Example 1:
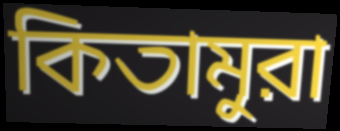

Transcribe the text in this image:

কিতামুরা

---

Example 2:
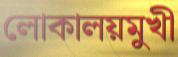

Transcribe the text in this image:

লোকালয়মুখী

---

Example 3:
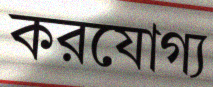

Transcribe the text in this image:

করযোগ্য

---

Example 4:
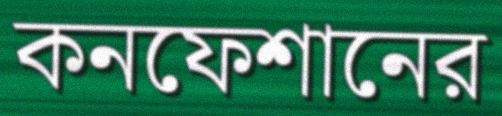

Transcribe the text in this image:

কনফেশানের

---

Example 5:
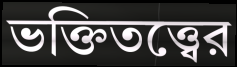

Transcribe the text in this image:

ভক্তিতত্ত্বের